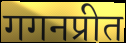
गगनप्रीत